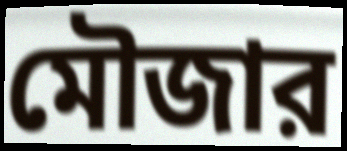
মৌজার